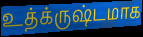
உத்க்ருஷ்டமாக